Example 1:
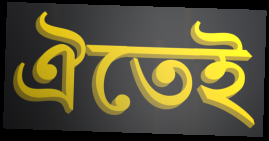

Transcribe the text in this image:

ঐতেই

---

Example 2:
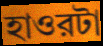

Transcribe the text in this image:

হাওরটা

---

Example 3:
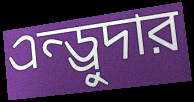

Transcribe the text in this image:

এন্ড্রুদার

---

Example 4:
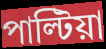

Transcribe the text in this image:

পাল্টিয়া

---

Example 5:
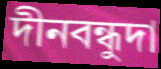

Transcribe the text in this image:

দীনবন্ধুদা